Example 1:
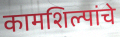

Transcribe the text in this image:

कामशिल्पांचे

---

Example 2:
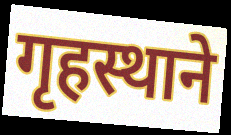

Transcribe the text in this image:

गृहस्थाने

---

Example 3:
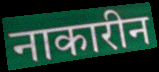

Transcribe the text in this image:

नाकारीन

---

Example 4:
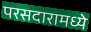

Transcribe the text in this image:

परसदारामध्ये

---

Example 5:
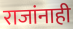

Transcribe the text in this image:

राजांनाही